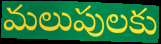
మలుపులకు